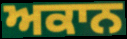
ਅਕਾਨ